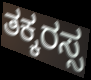
ತಕ್ಕರಸ್ಸ